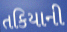
તકિયાની